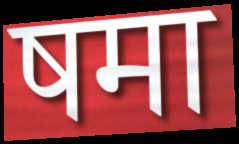
षमा